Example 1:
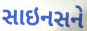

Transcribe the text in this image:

સાઇનસને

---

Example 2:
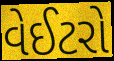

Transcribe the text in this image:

વેઈટરો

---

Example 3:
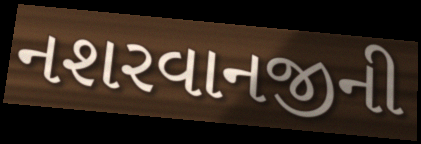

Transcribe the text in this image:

નશરવાનજીની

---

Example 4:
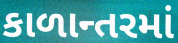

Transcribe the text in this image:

કાળાન્તરમાં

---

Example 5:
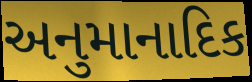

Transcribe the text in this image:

અનુમાનાદિક